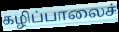
கழிப்பாலைச்